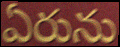
ఏరును